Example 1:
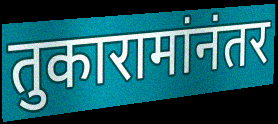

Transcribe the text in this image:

तुकारामांनंतर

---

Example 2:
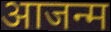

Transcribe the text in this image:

आजन्म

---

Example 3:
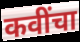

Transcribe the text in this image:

कवींचा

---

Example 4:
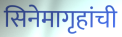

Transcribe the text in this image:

सिनेमागृहांची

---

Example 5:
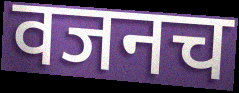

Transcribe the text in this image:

वजनच